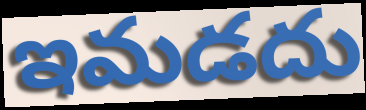
ఇమడదు